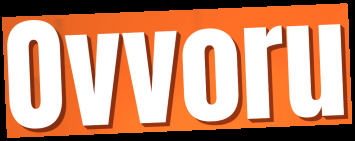
Ovvoru